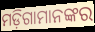
ମଡ଼ିଗାମାନଙ୍କର